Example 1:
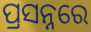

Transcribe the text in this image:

ପ୍ରସନ୍ନରେ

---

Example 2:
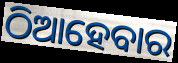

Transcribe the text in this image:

ଠିଆହେବାର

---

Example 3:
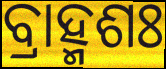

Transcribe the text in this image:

ବ୍ରାହ୍ମଶଃ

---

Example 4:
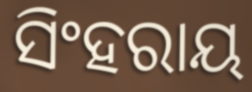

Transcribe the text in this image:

ସିଂହରାୟ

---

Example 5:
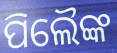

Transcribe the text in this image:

ପିଲୈଙ୍କ